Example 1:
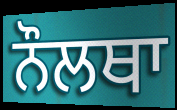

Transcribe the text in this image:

ਨੌਲਥਾ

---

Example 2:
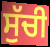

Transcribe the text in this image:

ਸੁੱਚੀ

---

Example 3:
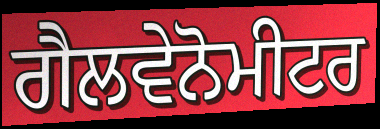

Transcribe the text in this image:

ਗੈਲਵੇਨੋਮੀਟਰ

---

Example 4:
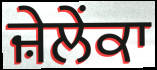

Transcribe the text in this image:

ਜ਼ੇਲੇਂਕਾ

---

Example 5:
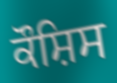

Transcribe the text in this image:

ਕੌਸ਼ਿਸ